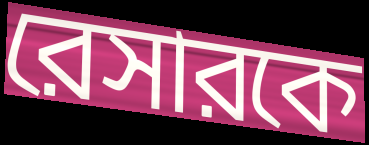
রেসারকে